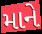
માને